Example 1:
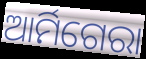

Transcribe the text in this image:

ଆର୍ମିଗେରା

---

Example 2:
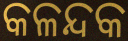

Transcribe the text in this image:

କଳନ୍ଦକ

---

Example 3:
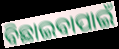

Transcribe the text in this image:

ବିଛାଇବାପାଇଁ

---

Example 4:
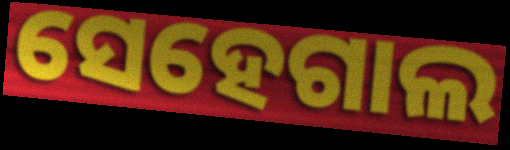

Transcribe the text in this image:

ସେହେଗାଲ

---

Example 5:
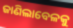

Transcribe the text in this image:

ଜାଣିଲାବେଳକୁ